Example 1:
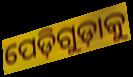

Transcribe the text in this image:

ପେଡ଼ିଗୁଡ଼ାକୁ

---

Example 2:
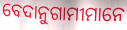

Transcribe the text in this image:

ବେଦାନୁଗାମୀମାନେ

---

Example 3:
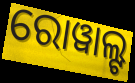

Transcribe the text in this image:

ରୋୱାଲ୍ଟ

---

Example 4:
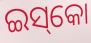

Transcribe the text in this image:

ଇସ୍‌କୋ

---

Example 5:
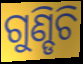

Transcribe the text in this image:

ଗୁଣ୍ଡିଚି